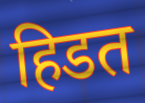
हिडत